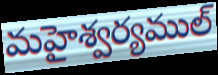
మహైశ్వర్యముల్